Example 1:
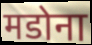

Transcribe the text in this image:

मडोना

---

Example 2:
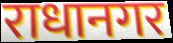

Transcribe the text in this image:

राधानगर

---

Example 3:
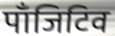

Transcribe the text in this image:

पाँजिटिव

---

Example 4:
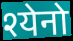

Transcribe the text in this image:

श्येनो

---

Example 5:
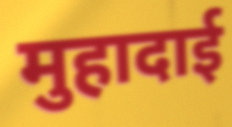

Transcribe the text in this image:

मुहादाई